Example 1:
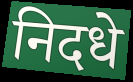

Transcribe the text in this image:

निदधे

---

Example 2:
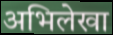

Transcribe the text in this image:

अभिलेखा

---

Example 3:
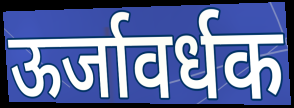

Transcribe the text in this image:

ऊर्जावर्धक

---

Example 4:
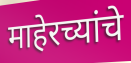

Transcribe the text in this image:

माहेरच्यांचे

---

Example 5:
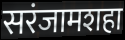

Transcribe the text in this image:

सरंजामशहा